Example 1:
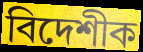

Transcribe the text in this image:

বিদেশীক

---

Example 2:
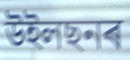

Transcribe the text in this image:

উইলছনৰ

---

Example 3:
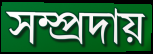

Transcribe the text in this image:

সম্প্ৰদায়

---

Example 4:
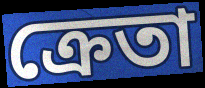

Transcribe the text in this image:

ক্ৰেতা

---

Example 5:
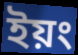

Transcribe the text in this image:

ইয়ং